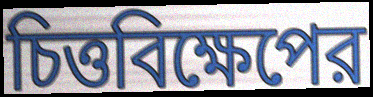
চিত্তবিক্ষেপের